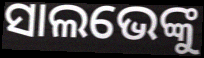
ସାଲଭେଙ୍କୁ